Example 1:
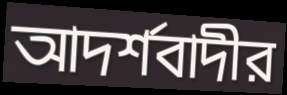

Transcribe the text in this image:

আদর্শবাদীর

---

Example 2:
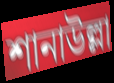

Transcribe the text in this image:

শানাউল্লা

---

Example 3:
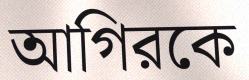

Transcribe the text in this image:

আগিরকে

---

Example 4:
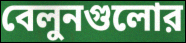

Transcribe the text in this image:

বেলুনগুলোর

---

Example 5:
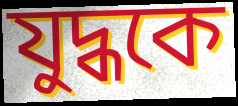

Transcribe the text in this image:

যুদ্ধকে